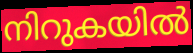
നിറുകയിൽ